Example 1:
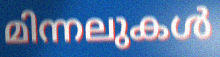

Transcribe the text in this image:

മിന്നലുകൾ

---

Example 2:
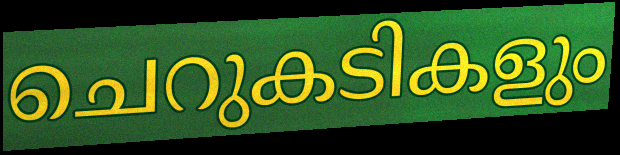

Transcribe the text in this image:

ചെറുകടികളും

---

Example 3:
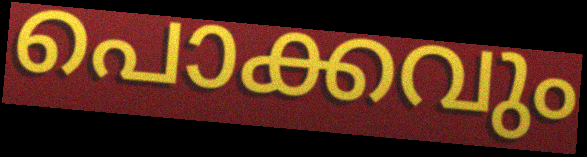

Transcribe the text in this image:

പൊക്കവും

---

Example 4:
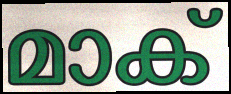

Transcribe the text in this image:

മാക്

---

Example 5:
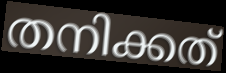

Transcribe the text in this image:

തനിക്കത്